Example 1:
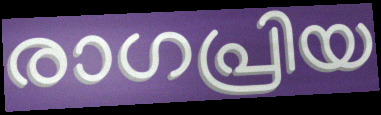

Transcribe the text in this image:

രാഗപ്രിയ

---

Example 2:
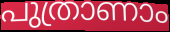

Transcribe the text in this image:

പുത്രാണാം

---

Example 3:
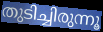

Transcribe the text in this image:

തുടിച്ചിരുന്നൂ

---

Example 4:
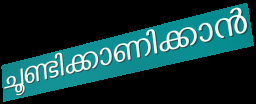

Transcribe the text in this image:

ചൂണ്ടിക്കാണിക്കാൻ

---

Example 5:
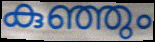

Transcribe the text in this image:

കുഞ്ഞും